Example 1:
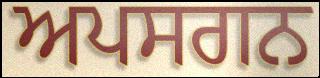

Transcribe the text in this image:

ਅਪਸਗਨ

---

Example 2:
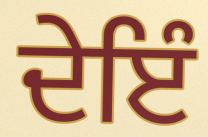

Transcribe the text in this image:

ਦੇਇੰ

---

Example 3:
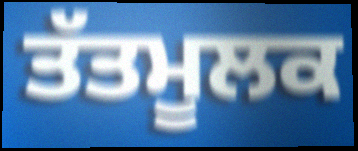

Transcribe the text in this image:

ਤੱਤਮੂਲਕ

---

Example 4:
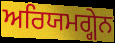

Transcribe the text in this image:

ਅਰਿਯਮਗ੍ਗੇਨ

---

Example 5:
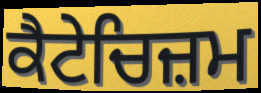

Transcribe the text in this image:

ਕੈਟੇਚਿਜ਼ਮ